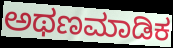
ಅಥಣಮಾಡಿಕ